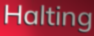
Halting